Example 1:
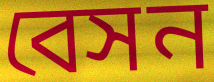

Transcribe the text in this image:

বেসন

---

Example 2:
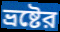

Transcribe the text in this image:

ভ্রষ্টের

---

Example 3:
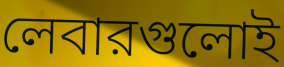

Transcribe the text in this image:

লেবারগুলোই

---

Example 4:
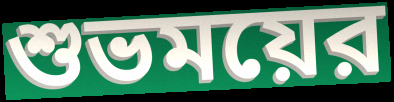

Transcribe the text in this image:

শুভময়ের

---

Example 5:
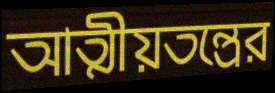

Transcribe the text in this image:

আত্মীয়তন্ত্রের